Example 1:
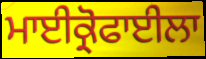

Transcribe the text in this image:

ਮਾਈਕ੍ਰੋਫਾਈਲਾ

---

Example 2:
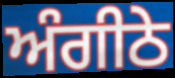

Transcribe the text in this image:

ਅੰਗੀਠੇ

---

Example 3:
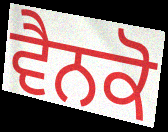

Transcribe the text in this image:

ਵੈਨਕੋ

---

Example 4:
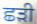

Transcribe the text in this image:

ਛੜੀ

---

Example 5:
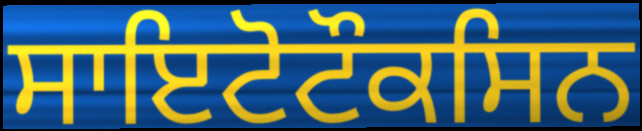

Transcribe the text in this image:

ਸਾਇਟੋਟੌਕਸਿਨ